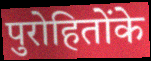
पुरोहितोंके